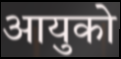
आयुको